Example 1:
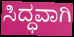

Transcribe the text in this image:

ಸಿದ್ಧವಾಗಿ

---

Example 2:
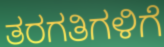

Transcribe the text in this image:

ತರಗತಿಗಳಿಗೆ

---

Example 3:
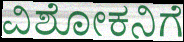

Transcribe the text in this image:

ವಿಶೋಕನಿಗೆ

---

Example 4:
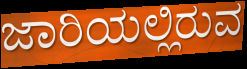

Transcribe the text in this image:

ಜಾರಿಯಲ್ಲಿರುವ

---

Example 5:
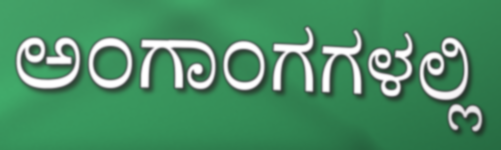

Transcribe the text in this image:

ಅಂಗಾಂಗಗಳಲ್ಲಿ